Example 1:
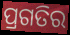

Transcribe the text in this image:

ପ୍ରଗତିର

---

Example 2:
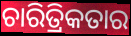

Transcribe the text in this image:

ଚାରିତ୍ରିକତାର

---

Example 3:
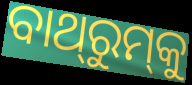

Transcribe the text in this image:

ବାଥ୍‌ରୁମ୍‌କୁ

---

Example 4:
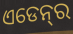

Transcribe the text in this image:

ଏଡେନ୍‍ର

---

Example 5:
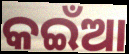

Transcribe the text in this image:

କଇଁଆ